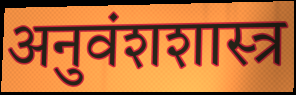
अनुवंशशास्त्र